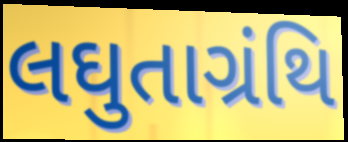
લઘુતાગ્રંથિ